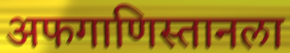
अफगाणिस्तानला